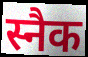
स्नैक